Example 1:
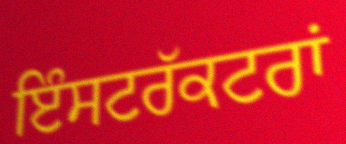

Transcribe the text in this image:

ਇੰਸਟਰੱਕਟਰਾਂ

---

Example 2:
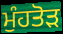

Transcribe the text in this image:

ਮੁੰਹਤੋੜ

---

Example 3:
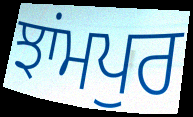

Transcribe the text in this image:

ਝਾਂਮਪੁਰ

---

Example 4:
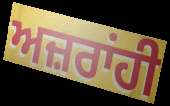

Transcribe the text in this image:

ਅਜ਼ਰਾਂਹੀ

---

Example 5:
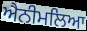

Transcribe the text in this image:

ਐਨੀਮਲਿਆ